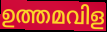
ഉത്തമവിള